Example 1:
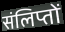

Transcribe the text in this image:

संलिप्तों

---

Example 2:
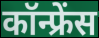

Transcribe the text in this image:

कॉन्फ्रेंस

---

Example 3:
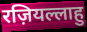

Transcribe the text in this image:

रज़ियल्लाहु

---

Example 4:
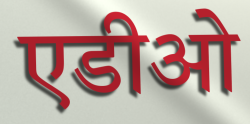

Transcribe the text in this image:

एडीओ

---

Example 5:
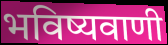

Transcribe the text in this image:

भविष्यवाणी